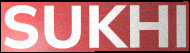
SUKHI